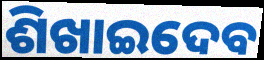
ଶିଖାଇଦେବ